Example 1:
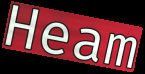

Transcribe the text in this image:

Heam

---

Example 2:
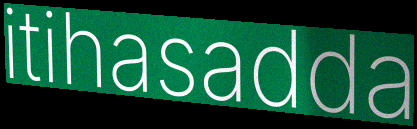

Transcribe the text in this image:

itihasadda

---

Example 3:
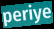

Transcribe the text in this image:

periye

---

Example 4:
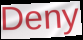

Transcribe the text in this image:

Deny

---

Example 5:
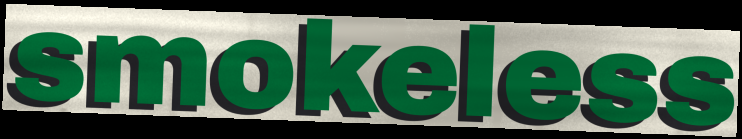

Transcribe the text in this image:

smokeless